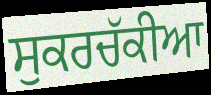
ਸੁਕਰਚੱਕੀਆ